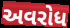
અવરોધ